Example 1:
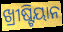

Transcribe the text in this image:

ଖ୍ରୀଷ୍ଟିୟାନ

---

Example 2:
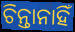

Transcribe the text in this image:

ଚିନ୍ତାନାହିଁ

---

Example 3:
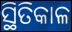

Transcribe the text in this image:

ସ୍ଥିତିକାଳ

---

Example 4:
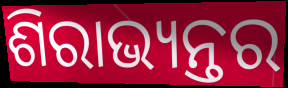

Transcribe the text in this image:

ଶିରାଭ୍ୟନ୍ତର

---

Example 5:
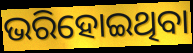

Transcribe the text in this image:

ଭରିହୋଇଥିବା